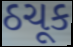
ઠચૂક